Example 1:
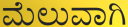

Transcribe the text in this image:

ಮೆಲುವಾಗಿ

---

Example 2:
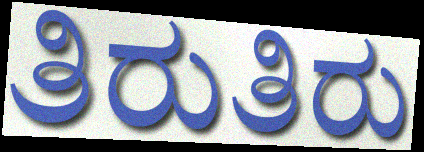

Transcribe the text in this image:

ತಿರುತಿರು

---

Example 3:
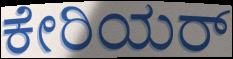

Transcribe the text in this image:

ಕೇರಿಯರ್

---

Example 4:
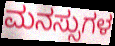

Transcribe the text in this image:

ಮನಸ್ಸುಗಳ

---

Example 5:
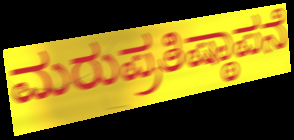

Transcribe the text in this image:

ಮರುಪ್ರತಿಷ್ಠಾಪನೆ